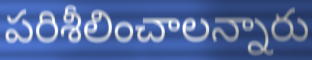
పరిశీలించాలన్నారు